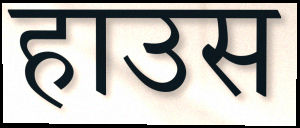
हाउस